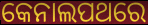
କେନାଲପଥରେ